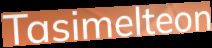
Tasimelteon